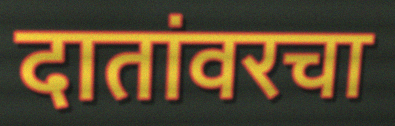
दातांवरचा